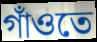
গাঁওতে